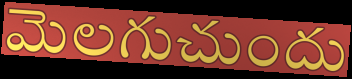
మెలగుచుందు